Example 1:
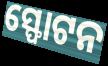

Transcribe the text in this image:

ସ୍ଫୋଟନ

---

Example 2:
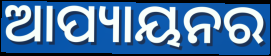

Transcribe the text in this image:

ଆପ୍ୟାୟନର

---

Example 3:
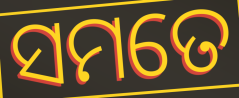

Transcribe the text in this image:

ସମତେ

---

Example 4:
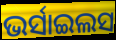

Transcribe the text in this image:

ଭର୍ସାଇଲସ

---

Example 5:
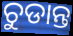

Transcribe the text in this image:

ଚୁଡାନ୍ତ